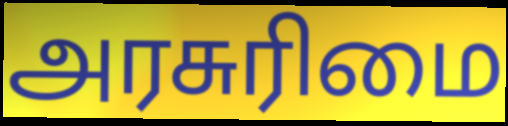
அரசுரிமை